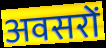
अवसरों